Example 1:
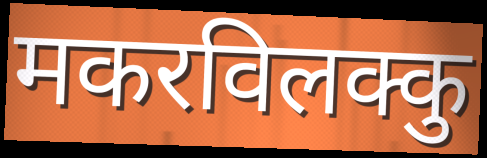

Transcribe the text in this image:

मकरविलक्कु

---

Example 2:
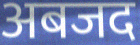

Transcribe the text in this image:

अबजद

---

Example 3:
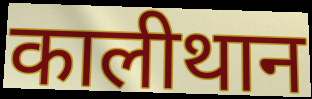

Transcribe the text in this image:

कालीथान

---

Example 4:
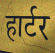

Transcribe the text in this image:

हार्टर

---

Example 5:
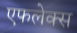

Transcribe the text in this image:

एफलेक्स